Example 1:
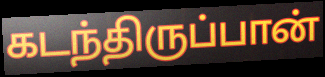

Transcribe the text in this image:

கடந்திருப்பான்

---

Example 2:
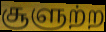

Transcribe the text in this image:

சூளுற்ற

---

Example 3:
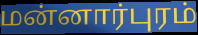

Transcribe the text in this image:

மன்னார்புரம்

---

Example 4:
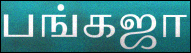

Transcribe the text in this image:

பங்கஜா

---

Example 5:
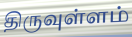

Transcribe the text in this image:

திருவுள்ளம்